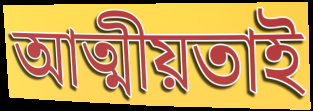
আত্মীয়তাই